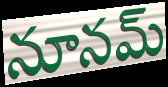
నూనమ్